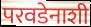
परवडेनाशी